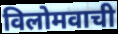
विलोमवाची